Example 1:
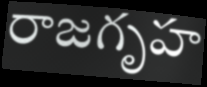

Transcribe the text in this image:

రాజగృహ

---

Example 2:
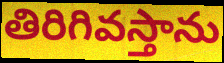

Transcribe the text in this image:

తిరిగివస్తాను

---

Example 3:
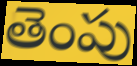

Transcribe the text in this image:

తెంపు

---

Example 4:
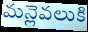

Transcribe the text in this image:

మన్లెవలుకి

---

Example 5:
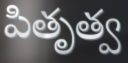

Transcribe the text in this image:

పితృత్వ